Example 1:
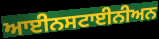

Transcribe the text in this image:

ਆਈਨਸਟਾਈਨੀਅਨ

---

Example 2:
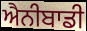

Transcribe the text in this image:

ਐਨੀਬਾਡੀ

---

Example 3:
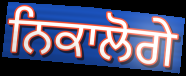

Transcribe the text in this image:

ਨਿਕਾਲੋਗੇ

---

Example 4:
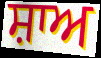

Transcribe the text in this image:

ਸ਼ਾਅ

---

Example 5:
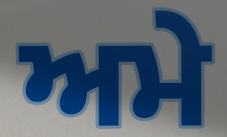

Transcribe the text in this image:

ਅਮੇ